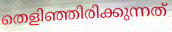
തെളിഞ്ഞിരിക്കുന്നത്